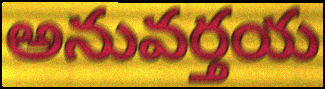
అనువర్తయ